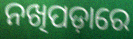
ନଖିପଡ଼ାରେ